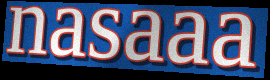
nasaaa